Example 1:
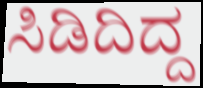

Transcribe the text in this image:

ಸಿಡಿದಿದ್ದ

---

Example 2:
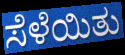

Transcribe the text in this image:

ಸೆಳೆಯಿತು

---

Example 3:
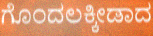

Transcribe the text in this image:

ಗೊಂದಲಕ್ಕೀಡಾದ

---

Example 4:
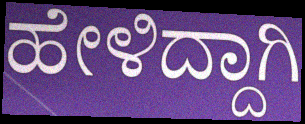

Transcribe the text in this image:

ಹೇಳಿದ್ದಾಗಿ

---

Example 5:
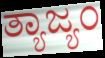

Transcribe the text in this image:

ತ್ಯಾಜ್ಯಂ